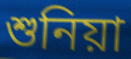
শুনিয়া